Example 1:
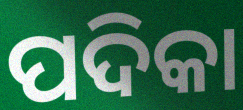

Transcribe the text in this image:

ପଦିକା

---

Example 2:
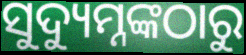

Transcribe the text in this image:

ସୁଦ୍ୟୁମ୍ନଙ୍କଠାରୁ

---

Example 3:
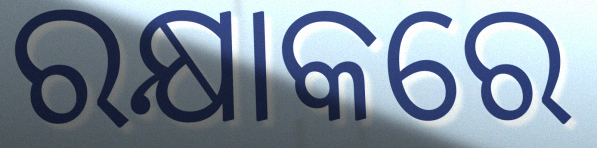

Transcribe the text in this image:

ରକ୍ଷାକରେ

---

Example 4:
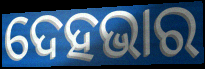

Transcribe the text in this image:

ଦେହଭାର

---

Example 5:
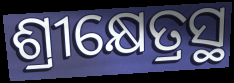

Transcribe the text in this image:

ଶ୍ରୀକ୍ଷେତ୍ରସ୍ଥ